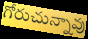
గోరుచున్నావు